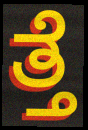
ತ್ತೆ